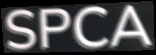
SPCA